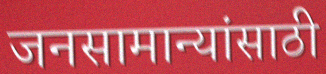
जनसामान्यांसाठी